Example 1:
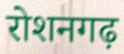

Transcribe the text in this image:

रोशनगढ़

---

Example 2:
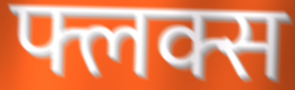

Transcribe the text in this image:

फ्लक्स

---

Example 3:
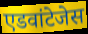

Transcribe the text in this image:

एडवांटेजेस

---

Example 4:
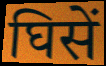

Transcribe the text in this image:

घिसें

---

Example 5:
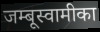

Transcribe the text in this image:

जम्बूस्वामीका